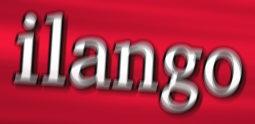
ilango